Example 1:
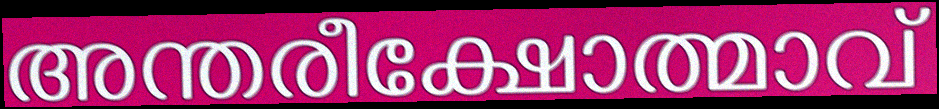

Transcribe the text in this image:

അന്തരീക്ഷോത്മാവ്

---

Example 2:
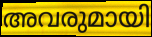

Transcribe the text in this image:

അവരുമായി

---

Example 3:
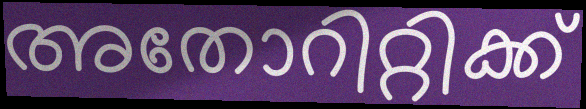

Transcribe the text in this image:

അതോറിറ്റിക്ക്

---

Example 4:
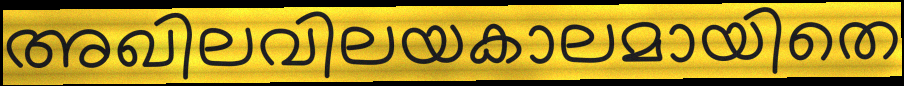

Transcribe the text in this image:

അഖിലവിലയകാലമായിതെ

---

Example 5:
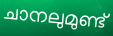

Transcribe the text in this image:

ചാനലുമുണ്ട്